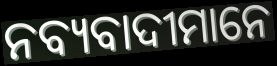
ନବ୍ୟବାଦୀମାନେ